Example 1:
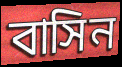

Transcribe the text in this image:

বাসিন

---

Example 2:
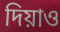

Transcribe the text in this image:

দিয়াও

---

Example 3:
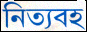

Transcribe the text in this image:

নিত্যবহ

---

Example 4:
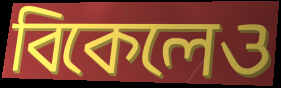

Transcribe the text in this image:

বিকেলেও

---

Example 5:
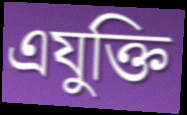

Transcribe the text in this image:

এযুক্তি